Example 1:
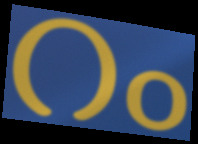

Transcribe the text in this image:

റം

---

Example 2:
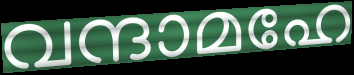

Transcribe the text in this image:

വന്ദാമഹേ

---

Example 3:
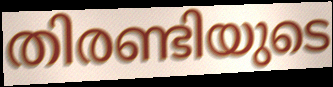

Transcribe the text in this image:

തിരണ്ടിയുടെ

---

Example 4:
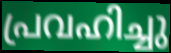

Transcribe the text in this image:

പ്രവഹിച്ചു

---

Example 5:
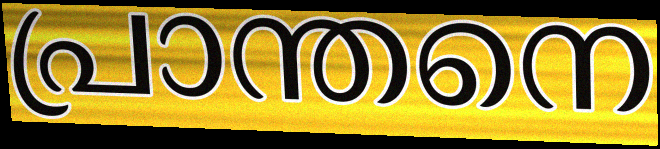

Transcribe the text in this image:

പ്രാന്തനെ